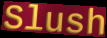
Slush